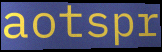
aotspr